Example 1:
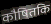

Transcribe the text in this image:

कौषितकि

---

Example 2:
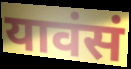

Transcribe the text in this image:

यावंसं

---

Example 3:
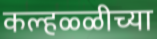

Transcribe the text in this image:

कल्हळ्ळीच्या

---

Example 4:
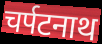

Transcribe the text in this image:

चर्पटनाथ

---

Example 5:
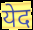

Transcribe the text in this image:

येद